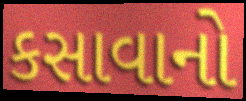
કસાવાનો